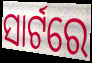
ସାର୍ଟରେ